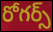
రోగర్స్